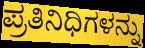
ಪ್ರತಿನಿಧಿಗಳನ್ನು